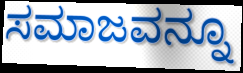
ಸಮಾಜವನ್ನೂ